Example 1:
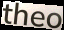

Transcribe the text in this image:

theo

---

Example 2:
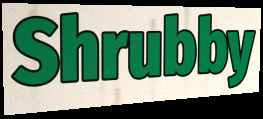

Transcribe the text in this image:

Shrubby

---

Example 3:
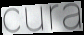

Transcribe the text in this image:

cura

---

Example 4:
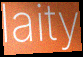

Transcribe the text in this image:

laity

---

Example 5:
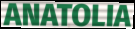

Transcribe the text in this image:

ANATOLIA